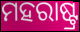
ମହରାଷ୍ଟ୍ର